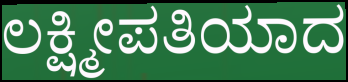
ಲಕ್ಷ್ಮೀಪತಿಯಾದ